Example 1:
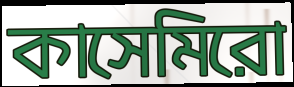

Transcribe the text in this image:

কাসেমিরো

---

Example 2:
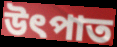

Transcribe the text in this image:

উৎপাত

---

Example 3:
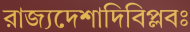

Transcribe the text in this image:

রাজ্যদেশাদিবিপ্লবঃ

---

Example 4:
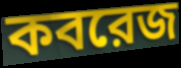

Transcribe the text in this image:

কবরেজ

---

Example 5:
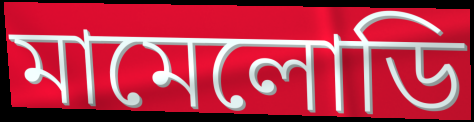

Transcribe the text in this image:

মামেলোডি